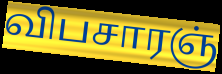
விபசாரஞ்